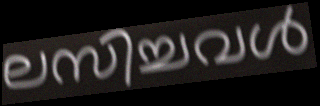
ലസിച്ചവൾ